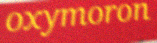
oxymoron